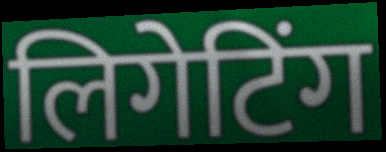
लिगेटिंग